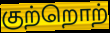
குற்றொற்